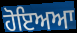
ਹੋਇਅਆ